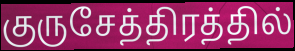
குருசேத்திரத்தில்